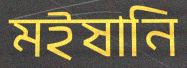
মইষানি